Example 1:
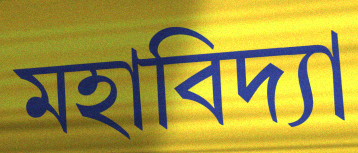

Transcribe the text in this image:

মহাবিদ্যা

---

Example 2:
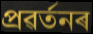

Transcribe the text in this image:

প্ৰৱৰ্তনৰ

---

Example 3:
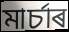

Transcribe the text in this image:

মাৰ্চাৰ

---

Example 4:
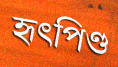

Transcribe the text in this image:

হৃৎপিণ্ড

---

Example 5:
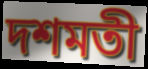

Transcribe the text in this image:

দশমতী